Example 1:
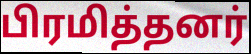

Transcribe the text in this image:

பிரமித்தனர்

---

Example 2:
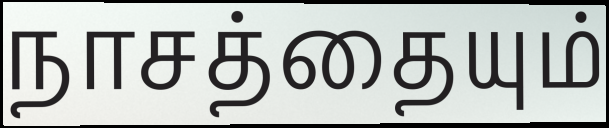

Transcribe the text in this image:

நாசத்தையும்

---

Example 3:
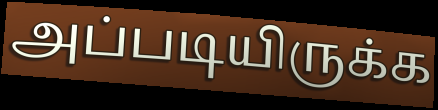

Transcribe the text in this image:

அப்படியிருக்க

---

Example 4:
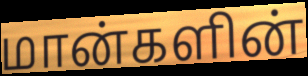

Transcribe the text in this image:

மான்களின்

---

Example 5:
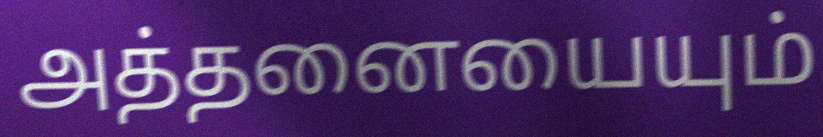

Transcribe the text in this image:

அத்தனையையும்